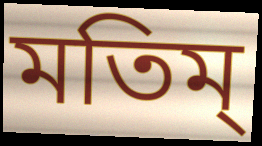
মতিম্